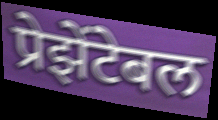
प्रेझेंटेबल